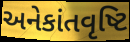
અનેકાંતવૃષ્ટિ